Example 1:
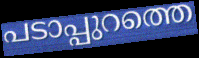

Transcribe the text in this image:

പടാപ്പുറത്തെ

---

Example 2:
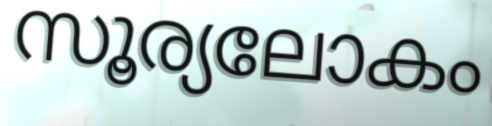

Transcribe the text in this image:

സൂര്യലോകം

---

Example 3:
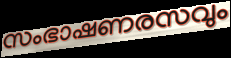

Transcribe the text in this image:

സംഭാഷണരസവും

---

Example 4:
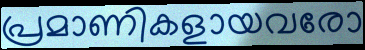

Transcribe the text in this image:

പ്രമാണികളായവരോ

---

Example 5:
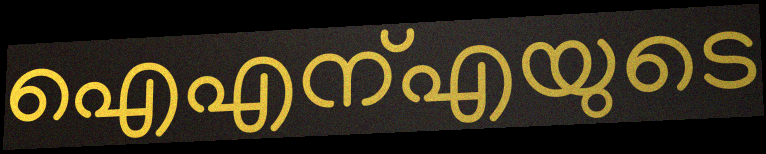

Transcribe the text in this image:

ഐഎന്എയുടെ